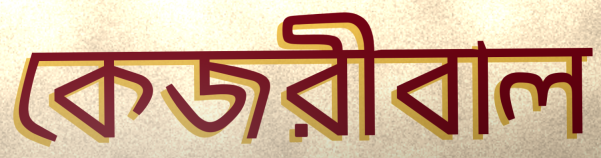
কেজরীবাল